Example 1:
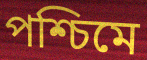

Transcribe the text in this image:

পশ্চিমে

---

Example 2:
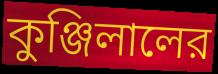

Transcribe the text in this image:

কুঞ্জিলালের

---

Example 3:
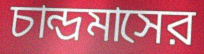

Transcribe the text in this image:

চান্দ্রমাসের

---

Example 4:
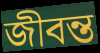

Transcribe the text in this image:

জীবন্ত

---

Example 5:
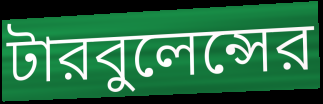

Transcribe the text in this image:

টারবুলেন্সের